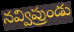
నవ్విప్రుండు